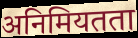
अनिमियतता